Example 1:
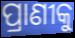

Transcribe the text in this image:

ପ୍ରାଣୀକୁ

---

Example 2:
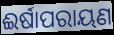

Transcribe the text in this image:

ଈର୍ଷାପରାୟଣ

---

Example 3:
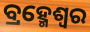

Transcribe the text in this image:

ବ୍ରହ୍ମେଶ୍ଵର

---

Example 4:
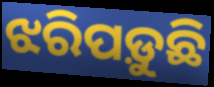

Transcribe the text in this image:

ଝରିପଡ଼ୁଛି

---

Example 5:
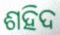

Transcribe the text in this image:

ଶହିଦ